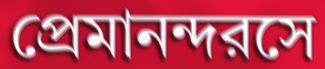
প্রেমানন্দরসে